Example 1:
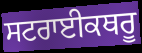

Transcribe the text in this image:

ਸਟਰਾਈਕਥਰੂ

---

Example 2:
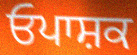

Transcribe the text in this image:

ਓਪਾਸ਼ਕ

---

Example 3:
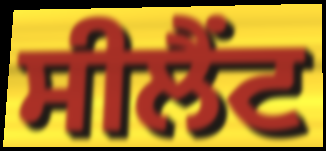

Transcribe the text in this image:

ਸੀਲੈਂਟ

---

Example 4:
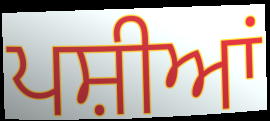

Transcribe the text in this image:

ਪਸ਼ੀਆਂ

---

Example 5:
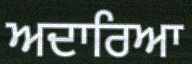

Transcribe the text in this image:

ਅਦਾਰਿਆ